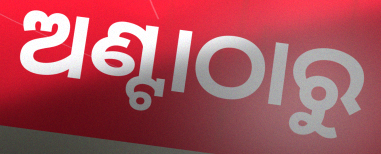
ଅଣ୍ଟାଠାରୁ